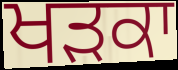
ਖੜਕਾ